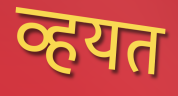
व्हयत